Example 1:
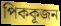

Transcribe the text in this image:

পিককূজন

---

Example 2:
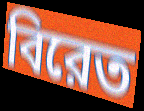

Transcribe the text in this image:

বিরেত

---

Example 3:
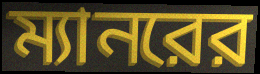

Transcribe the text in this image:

ম্যানরের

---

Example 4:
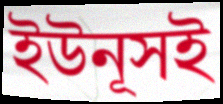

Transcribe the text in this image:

ইউনূসই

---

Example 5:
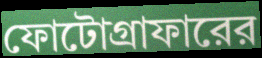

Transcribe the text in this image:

ফোটোগ্রাফারের